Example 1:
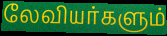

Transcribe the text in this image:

லேவியர்களும்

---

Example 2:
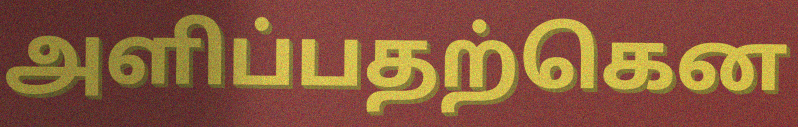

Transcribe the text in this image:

அளிப்பதற்கென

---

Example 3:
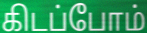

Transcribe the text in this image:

கிடப்போம்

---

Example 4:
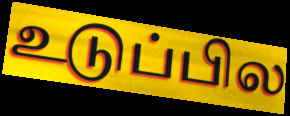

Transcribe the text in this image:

உடுப்பில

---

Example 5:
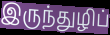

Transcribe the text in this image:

இருந்துழிப்